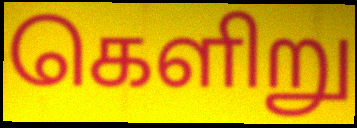
கெளிறு